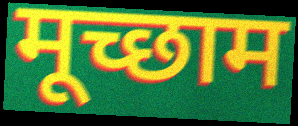
मूच्छाम